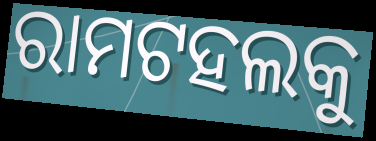
ରାମଟହଲକୁ